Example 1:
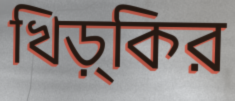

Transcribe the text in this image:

খিড়্‌কির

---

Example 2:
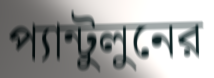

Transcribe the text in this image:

প্যান্টুলুনের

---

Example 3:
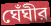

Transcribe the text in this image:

ঘেঁঘীর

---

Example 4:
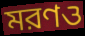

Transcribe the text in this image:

মরণও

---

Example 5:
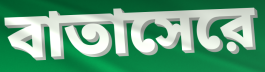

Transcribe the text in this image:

বাতাসেরে